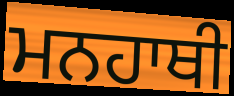
ਮਨਹਾਥੀ